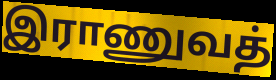
இராணுவத்